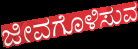
ಜೀವಗೊಳಿಸುವ